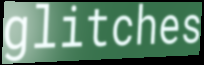
glitches